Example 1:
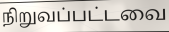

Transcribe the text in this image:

நிறுவப்பட்டவை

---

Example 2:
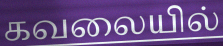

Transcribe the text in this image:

கவலையில்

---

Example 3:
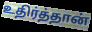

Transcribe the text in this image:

உதிர்த்தான்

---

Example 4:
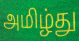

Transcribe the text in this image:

அமிழ்து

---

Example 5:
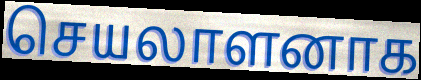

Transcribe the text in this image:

செயலாளனாக